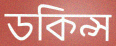
ডকিন্স